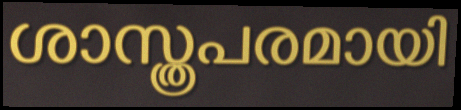
ശാസ്ത്രപരമായി